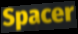
Spacer